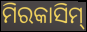
ମିରକାସିମ୍